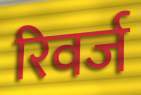
रिवर्ज